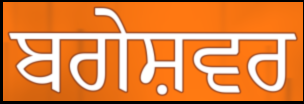
ਬਗੇਸ਼ਵਰ